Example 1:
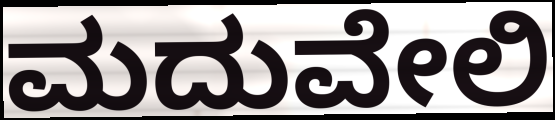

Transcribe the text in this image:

ಮದುವೇಲಿ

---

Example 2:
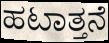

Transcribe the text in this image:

ಹಟಾತ್ತನೆ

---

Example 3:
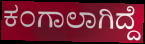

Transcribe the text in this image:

ಕಂಗಾಲಾಗಿದ್ದೆ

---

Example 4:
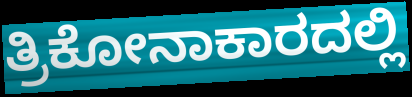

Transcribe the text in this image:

ತ್ರಿಕೋನಾಕಾರದಲ್ಲಿ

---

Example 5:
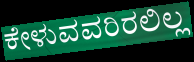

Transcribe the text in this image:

ಕೇಳುವವರಿರಲಿಲ್ಲ